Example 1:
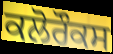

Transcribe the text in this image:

ਕਲੋਰੌਕਸ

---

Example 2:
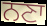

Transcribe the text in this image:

ਨਣਾ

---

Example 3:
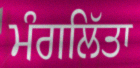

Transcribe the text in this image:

ਮੰਗਲਿੱਤਾ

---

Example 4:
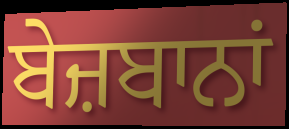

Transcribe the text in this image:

ਬੇਜ਼ਬਾਨਾਂ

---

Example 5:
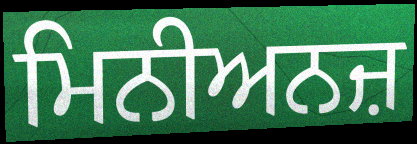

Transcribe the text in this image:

ਮਿਨੀਅਨਜ਼